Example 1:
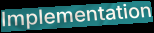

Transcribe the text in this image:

Implementation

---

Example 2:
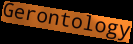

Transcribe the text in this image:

Gerontology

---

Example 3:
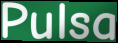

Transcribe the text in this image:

Pulsa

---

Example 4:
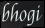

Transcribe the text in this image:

bhogi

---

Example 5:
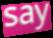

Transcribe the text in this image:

say